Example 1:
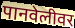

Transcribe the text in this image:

पानवेलीवर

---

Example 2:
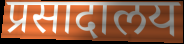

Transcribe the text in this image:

प्रसादालय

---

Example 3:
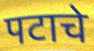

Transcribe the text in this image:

पटाचे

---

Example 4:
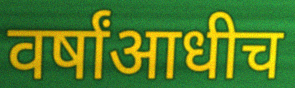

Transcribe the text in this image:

वर्षांआधीच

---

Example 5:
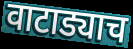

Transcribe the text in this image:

वाटाड्याच